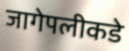
जागेपलीकडे